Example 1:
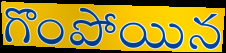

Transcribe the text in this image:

గొంపోయిన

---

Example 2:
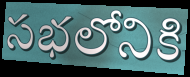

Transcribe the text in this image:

సభలోనికి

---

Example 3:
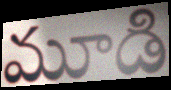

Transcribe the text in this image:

మూడి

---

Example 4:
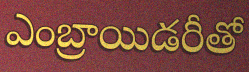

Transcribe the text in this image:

ఎంబ్రాయిడరీతో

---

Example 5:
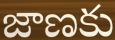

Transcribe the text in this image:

జాణకు